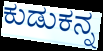
ಕುಡುಕನ್ನ